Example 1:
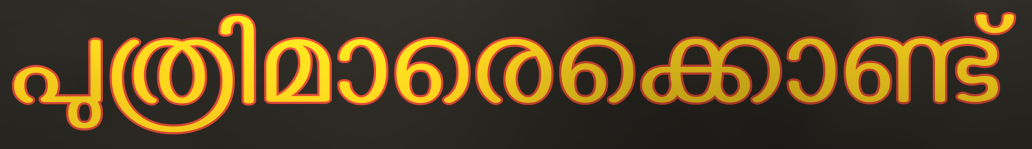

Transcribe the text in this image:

പുത്രിമാരെക്കൊണ്ട്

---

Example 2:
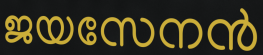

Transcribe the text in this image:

ജയസേനൻ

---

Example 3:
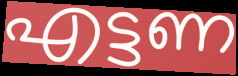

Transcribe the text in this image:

എട്ടണ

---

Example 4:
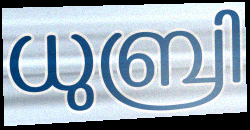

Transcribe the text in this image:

ധുബ്രി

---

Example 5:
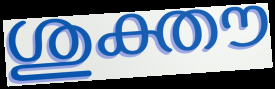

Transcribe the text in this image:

ശുക്തൗ